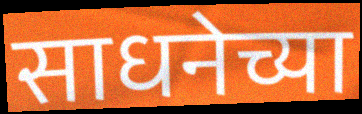
साधनेच्या